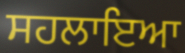
ਸਹਲਾਇਆ